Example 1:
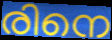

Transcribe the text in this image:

രിനെ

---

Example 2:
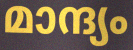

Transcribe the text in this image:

മാന്ദ്യം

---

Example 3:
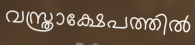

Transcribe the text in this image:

വസ്ത്രാക്ഷേപത്തിൽ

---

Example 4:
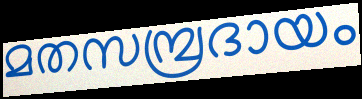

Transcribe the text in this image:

മതസമ്പ്രദായം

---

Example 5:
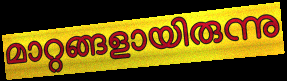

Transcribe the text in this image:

മാറ്റങ്ങളായിരുന്നു